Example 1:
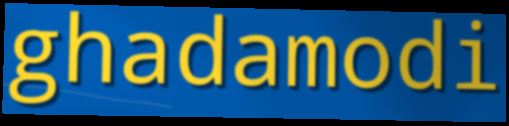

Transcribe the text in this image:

ghadamodi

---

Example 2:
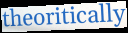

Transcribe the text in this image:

theoritically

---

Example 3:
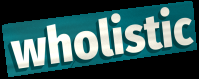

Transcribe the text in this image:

wholistic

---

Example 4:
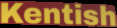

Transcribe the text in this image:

Kentish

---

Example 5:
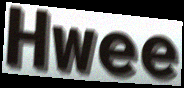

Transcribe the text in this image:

Hwee